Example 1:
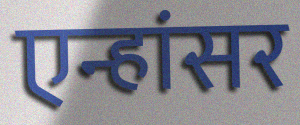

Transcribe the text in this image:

एन्हांसर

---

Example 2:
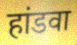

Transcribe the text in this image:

हांडवा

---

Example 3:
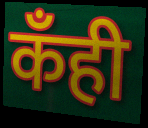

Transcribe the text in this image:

कँही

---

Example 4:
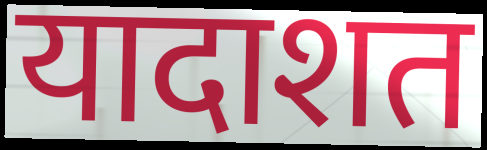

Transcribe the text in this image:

यादाशत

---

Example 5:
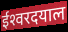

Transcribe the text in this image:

ईश्वरदयाल